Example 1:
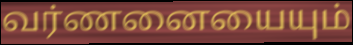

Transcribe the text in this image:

வர்ணனையையும்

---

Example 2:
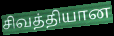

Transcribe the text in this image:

சிவத்தியான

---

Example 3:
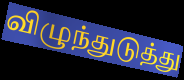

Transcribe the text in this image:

விழுந்துடுத்து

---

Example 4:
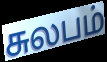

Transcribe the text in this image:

சுலபம்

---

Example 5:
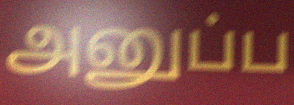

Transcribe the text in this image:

அனுப்ப